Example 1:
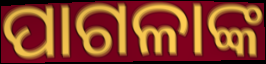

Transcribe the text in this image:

ପାଗଳାଙ୍କ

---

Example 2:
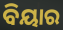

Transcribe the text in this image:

ବିୟାର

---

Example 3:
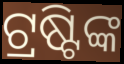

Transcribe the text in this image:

ଟ୍ରଷ୍ଟିଙ୍କ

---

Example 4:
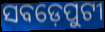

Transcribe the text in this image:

ସବଡ଼େପୁଟୀ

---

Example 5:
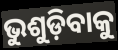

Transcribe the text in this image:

ଭୁଶୁଡ଼ିବାକୁ